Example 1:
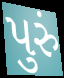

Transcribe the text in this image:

પુરું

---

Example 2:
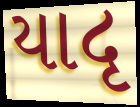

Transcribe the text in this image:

યાદૃ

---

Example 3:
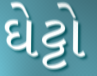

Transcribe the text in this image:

ઘેટ્ટો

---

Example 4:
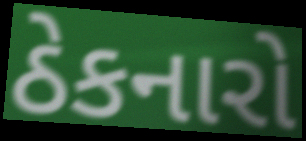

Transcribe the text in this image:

ઠેકનારો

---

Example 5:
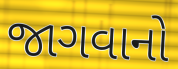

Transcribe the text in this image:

જાગવાનો